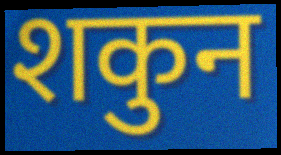
शकुन